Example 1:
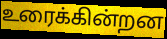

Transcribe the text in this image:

உரைக்கின்றன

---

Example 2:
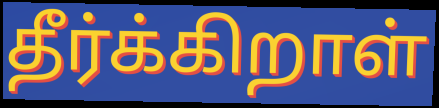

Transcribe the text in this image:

தீர்க்கிறாள்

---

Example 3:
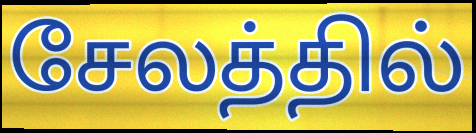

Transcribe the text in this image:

சேலத்தில்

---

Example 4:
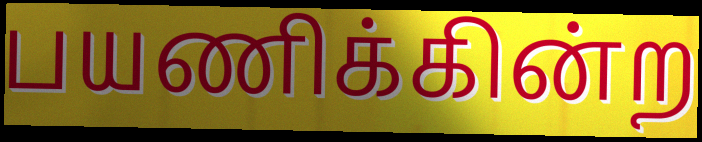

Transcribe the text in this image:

பயணிக்கின்ற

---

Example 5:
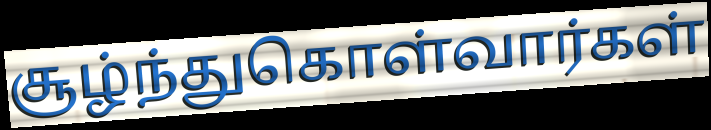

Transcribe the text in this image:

சூழ்ந்துகொள்வார்கள்